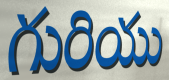
గురియు